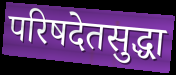
परिषदेतसुद्धा